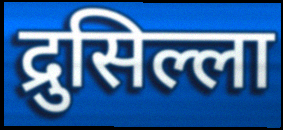
द्रुसिल्ला